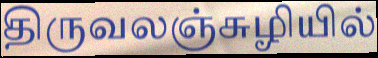
திருவலஞ்சுழியில்